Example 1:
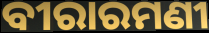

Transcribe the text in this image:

ବୀରାରମଣୀ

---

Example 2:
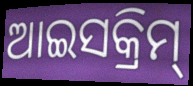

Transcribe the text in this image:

ଆଇସକ୍ରିମ୍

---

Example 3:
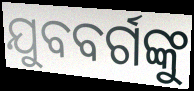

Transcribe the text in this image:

ଯୁବବର୍ଗଙ୍କୁ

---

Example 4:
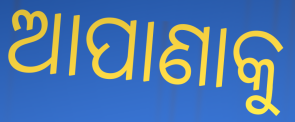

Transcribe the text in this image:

ଆପାଣାକୁ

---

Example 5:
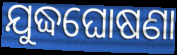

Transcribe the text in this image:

ଯୁଦ୍ଧଘୋଷଣା